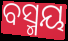
ବସ୍ମୟ